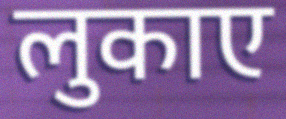
लुकाए